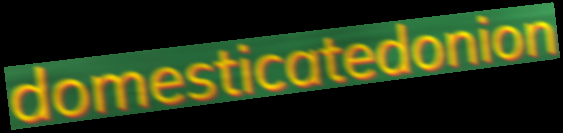
domesticatedonion